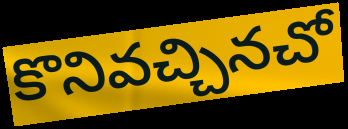
కొనివచ్చినచో